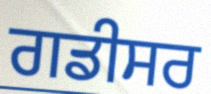
ਗਡੀਸਰ